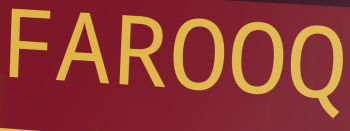
FAROOQ